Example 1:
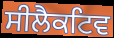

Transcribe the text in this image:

ਸੀਲੈਕਟਿਵ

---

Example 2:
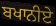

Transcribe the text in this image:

ਬਖਾਨੀਏ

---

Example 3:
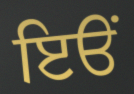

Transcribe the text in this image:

ਇੳਂ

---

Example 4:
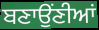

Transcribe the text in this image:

ਬਣਾਉਂਣੀਆਂ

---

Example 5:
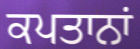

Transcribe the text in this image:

ਕਪਤਾਨਾਂ